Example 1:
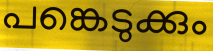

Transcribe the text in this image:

പങ്കെടുക്കും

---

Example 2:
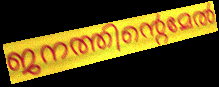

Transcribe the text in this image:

ജനത്തിന്റെമേൽ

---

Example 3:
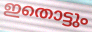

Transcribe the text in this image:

ഇതൊട്ടും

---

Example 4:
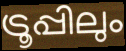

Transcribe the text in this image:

ട്രൂപ്പിലും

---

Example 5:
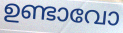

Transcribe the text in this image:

ഉണ്ടാവോ